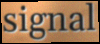
signal